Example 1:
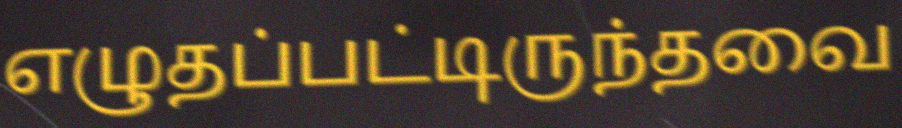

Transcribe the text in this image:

எழுதப்பட்டிருந்தவை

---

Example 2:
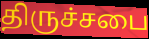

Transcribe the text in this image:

திருச்சபை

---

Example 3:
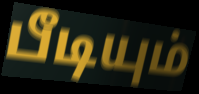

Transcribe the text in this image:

பீடியும்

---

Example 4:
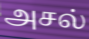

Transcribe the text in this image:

அசல்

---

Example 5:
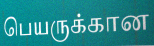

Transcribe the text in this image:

பெயருக்கான